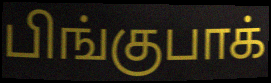
பிங்குபாக்